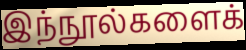
இந்நூல்களைக்